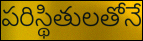
పరిస్థితులతోనే